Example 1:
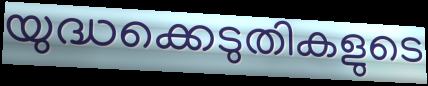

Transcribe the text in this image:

യുദ്ധക്കെടുതികളുടെ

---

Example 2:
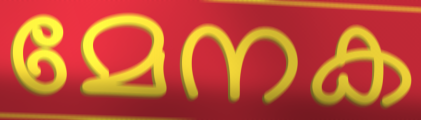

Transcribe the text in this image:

മേനക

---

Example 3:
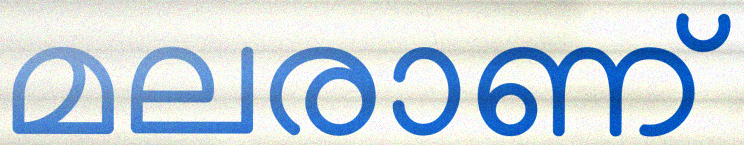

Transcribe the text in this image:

മലരാണ്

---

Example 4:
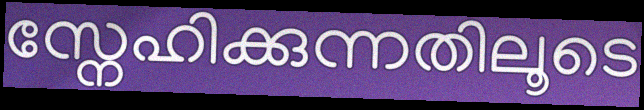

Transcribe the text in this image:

സ്നേഹിക്കുന്നതിലൂടെ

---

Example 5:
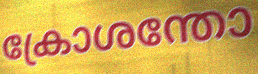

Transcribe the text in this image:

ക്രോശന്തോ